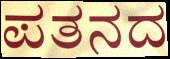
ಪತನದ